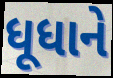
ધૂધાને